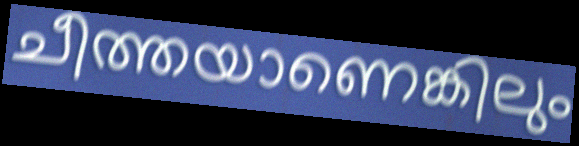
ചീത്തയാണെങ്കിലും